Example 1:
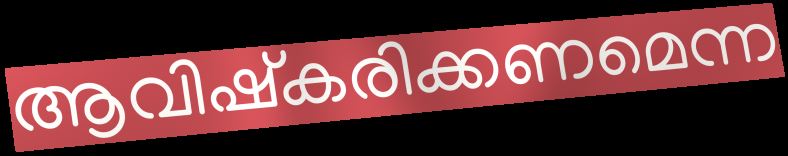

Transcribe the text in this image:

ആവിഷ്കരിക്കണമെന്ന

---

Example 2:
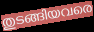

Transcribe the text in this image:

തുടങ്ങിയവരെ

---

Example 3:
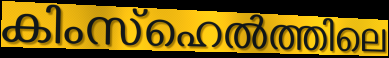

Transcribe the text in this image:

കിംസ്ഹെൽത്തിലെ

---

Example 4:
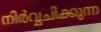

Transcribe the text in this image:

നിർവ്വചിക്കുന്ന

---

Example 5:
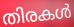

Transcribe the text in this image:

തിരകൾ